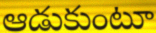
ఆడుకుంటూ